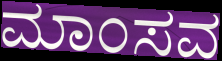
ಮಾಂಸವ